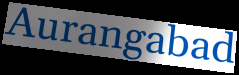
Aurangabad